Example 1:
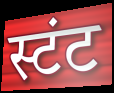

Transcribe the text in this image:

स्टंट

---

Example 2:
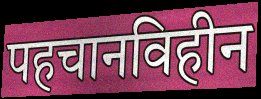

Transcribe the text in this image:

पहचानविहीन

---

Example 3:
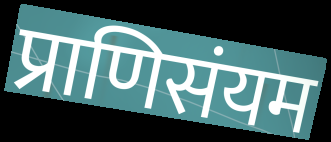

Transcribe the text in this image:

प्राणिसंयम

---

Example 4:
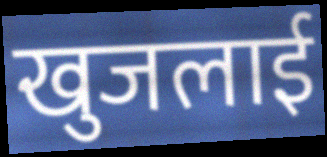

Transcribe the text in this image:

खुजलाई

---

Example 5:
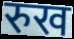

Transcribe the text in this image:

रुख